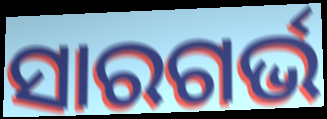
ସାରଗର୍ଭ